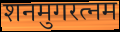
शनमुगरत्नम